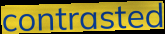
contrasted